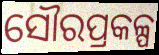
ସୌରପ୍ରକଳ୍ପ